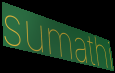
sumathi